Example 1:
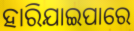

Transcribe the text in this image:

ହାରିଯାଇପାରେ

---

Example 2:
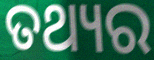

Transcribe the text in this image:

ତଥ୍ୟର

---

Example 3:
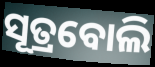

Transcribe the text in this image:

ସୂତ୍ରବୋଲି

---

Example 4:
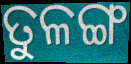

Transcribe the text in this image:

ତୁଳଙ୍ଗ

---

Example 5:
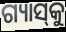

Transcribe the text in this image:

ଗ୍ୟାସ୍‌କୁ